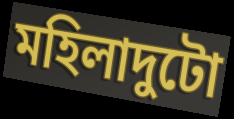
মহিলাদুটো